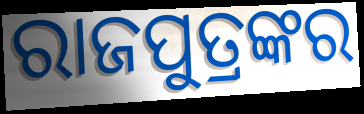
ରାଜପୁତ୍ରଙ୍କର